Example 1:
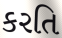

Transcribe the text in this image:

કરતિ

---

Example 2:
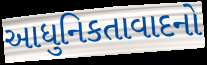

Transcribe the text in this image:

આધુનિકતાવાદનો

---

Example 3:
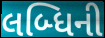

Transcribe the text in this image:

લબ્ધિની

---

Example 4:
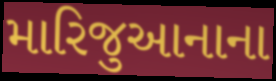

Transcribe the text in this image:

મારિજુઆનાના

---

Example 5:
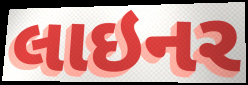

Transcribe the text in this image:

લાઇનર